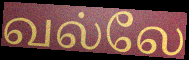
வல்லே